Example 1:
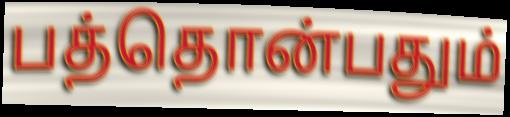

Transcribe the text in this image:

பத்தொன்பதும்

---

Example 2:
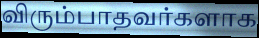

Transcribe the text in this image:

விரும்பாதவர்களாக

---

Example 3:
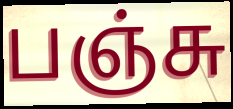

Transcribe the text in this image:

பஞ்சு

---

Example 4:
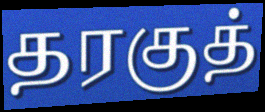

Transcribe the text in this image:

தரகுத்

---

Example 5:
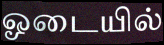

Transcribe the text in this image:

ஓடையில்